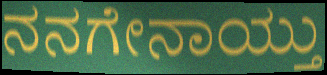
ನನಗೇನಾಯ್ತು